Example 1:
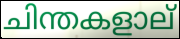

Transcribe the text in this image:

ചിന്തകളാല്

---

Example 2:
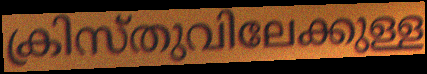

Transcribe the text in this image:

ക്രിസ്തുവിലേക്കുള്ള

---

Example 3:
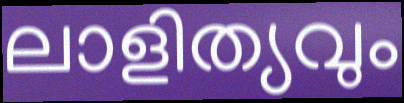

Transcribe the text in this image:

ലാളിത്യവും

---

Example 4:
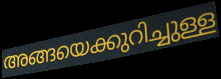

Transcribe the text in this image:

അങ്ങയെക്കുറിച്ചുള്ള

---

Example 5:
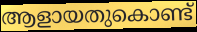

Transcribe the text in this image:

ആളായതുകൊണ്ട്